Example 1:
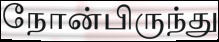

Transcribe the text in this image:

நோன்பிருந்து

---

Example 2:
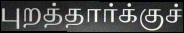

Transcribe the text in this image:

புறத்தார்க்குச்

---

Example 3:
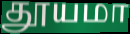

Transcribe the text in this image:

தூயமா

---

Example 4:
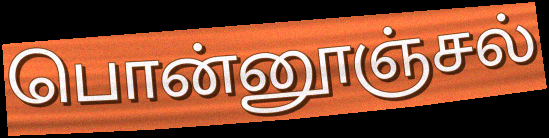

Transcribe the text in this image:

பொன்னூஞ்சல்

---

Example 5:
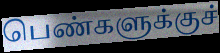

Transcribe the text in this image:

பெண்களுக்குச்